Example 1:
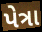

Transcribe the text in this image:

પેત્રા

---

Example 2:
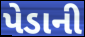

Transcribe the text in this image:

પેડાની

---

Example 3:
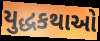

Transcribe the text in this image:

યુદ્ધકથાઓ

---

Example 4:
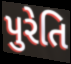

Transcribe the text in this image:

પુરેતિ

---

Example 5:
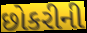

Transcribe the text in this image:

છોકરીની